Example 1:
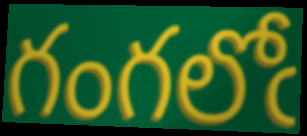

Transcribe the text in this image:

గంగలోఁ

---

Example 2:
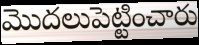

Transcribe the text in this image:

మొదలుపెట్టించారు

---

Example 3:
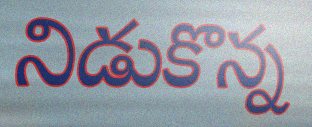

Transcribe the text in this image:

నిడుకొన్న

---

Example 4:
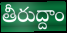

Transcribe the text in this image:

తీరుద్దాం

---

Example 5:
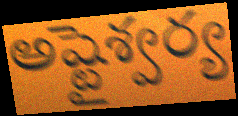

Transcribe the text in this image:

అష్టైశ్వర్య